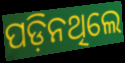
ପଡ଼ିନଥିଲେ